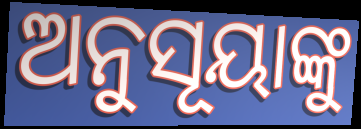
ଅନୁସୂୟାଙ୍କୁ